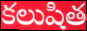
కలుషిత